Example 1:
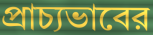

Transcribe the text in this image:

প্রাচ্যভাবের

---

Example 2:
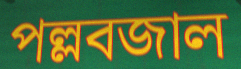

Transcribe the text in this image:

পল্লবজাল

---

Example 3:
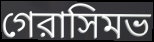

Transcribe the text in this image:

গেরাসিমভ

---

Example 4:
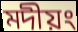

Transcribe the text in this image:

মদীয়ং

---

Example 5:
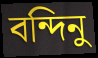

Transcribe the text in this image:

বন্দিনু